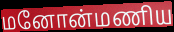
மனோன்மணிய